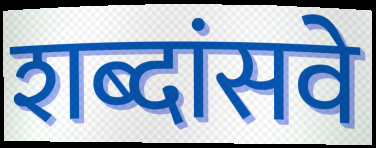
शब्दांसवे